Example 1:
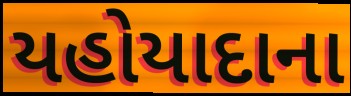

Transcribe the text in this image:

યહોયાદાના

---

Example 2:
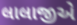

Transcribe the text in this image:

લાલાજીએ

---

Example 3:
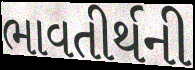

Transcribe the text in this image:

ભાવતીર્થની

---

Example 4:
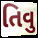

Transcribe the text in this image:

તિવુ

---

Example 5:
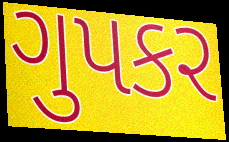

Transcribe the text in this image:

ગુપકર